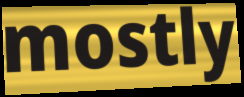
mostly